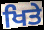
ਖਿਤੇ